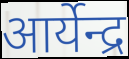
आर्येन्द्र